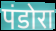
पंडोरा